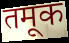
तमूक